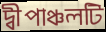
দ্বীপাঞ্চলটি